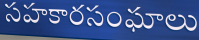
సహకారసంఘాలు